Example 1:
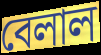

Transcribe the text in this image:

বেলাল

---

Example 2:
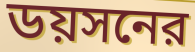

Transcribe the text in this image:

ডয়সনের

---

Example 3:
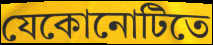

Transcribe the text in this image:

যেকোনোটিতে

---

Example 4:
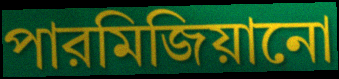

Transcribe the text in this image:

পারমিজিয়ানো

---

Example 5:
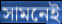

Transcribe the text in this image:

সামনেই